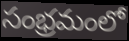
సంభ్రమంలో